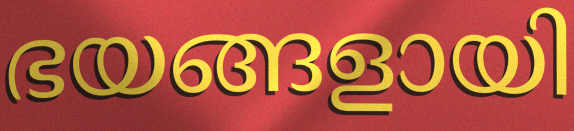
ഭയങ്ങളായി